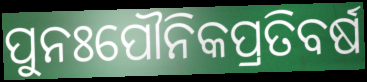
ପୁନଃପୌନିକପ୍ରତିବର୍ଷ